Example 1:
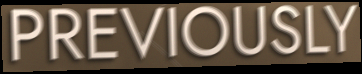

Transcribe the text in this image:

PREVIOUSLY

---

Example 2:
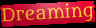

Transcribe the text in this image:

Dreaming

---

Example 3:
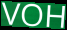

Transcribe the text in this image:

VOH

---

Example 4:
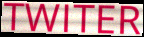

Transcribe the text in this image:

TWITER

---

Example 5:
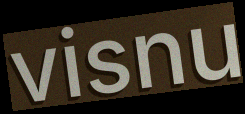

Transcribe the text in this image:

visnu